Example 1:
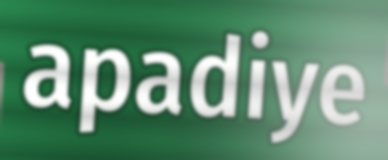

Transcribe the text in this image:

apadiye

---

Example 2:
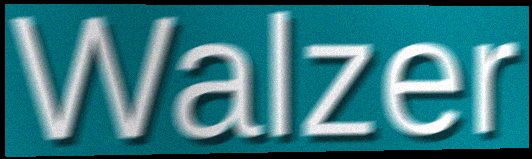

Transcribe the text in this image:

Walzer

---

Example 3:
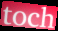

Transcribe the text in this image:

toch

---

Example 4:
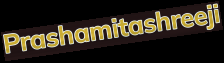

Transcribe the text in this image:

Prashamitashreeji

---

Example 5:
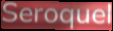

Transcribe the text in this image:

Seroquel